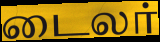
டைலர்